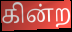
கின்ற